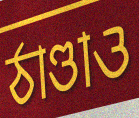
ঠাণ্ডাও